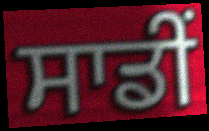
ਸਾਡੀਂ